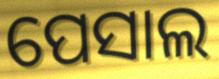
ପେସାଲ